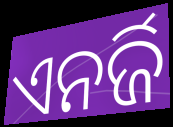
ଏନର୍ଜି